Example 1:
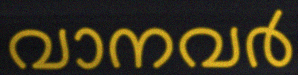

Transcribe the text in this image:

വാനവർ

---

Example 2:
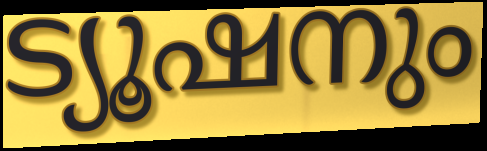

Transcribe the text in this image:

ട്യൂഷനും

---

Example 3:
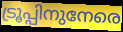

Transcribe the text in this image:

ട്രൂപ്പിനുനേരെ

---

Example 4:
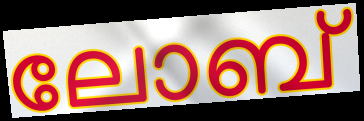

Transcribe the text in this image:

ലോബ്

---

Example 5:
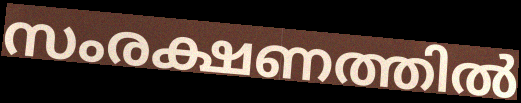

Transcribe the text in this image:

സംരക്ഷണത്തിൽ